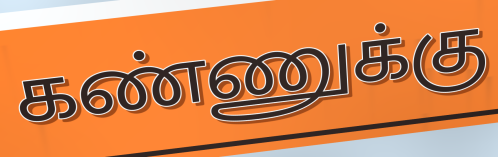
கண்ணுக்கு